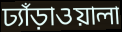
ঢ্যাঁড়াওয়ালা